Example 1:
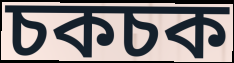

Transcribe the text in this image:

চকচক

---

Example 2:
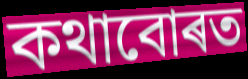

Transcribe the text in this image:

কথাবোৰত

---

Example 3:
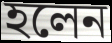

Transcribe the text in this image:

হলেন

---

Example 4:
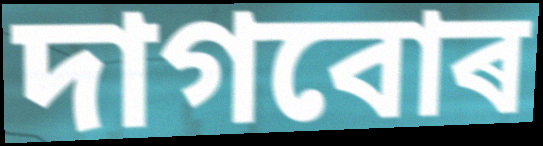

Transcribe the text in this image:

দাগবোৰ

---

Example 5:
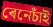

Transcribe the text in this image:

ৰেনেচাঁই